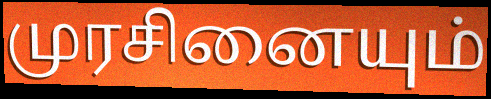
முரசினையும்